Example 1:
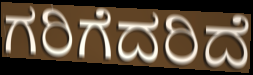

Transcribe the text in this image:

ಗರಿಗೆದರಿದೆ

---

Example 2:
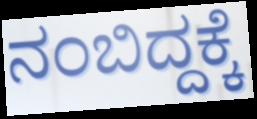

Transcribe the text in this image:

ನಂಬಿದ್ದಕ್ಕೆ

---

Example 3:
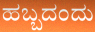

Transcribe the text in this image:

ಹಬ್ಬದಂದು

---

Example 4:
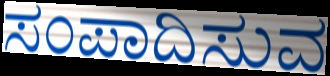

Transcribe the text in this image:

ಸಂಪಾದಿಸುವ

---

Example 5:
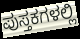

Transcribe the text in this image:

ಪುಸ್ತಕಗಳಲ್ಲಿ